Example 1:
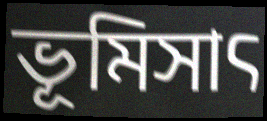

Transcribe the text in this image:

ভূমিসাৎ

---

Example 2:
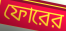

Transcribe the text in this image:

ফোরের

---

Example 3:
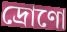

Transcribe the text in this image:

দ্রোণো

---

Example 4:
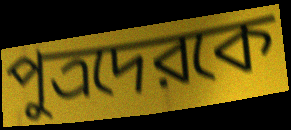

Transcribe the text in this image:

পুত্রদেরকে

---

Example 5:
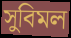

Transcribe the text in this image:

সুবিমল